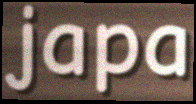
japa